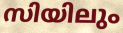
സിയിലും